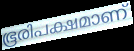
ഭൂരിപക്ഷമാണ്